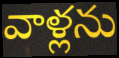
వాళ్లను